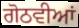
ਗੋਠਵੀਆਂ